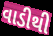
વાડીથી